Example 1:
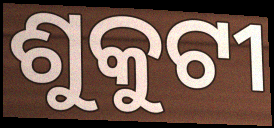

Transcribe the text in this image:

ଶୁକୁଟୀ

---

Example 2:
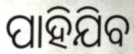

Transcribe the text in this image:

ପାହିଯିବ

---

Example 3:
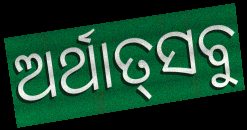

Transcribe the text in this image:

ଅର୍ଥାତ୍‌ସବୁ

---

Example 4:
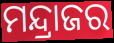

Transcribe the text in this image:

ମନ୍ଦ୍ରାଜର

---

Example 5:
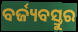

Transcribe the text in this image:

ବର୍ଜ୍ୟବସ୍ତୁର